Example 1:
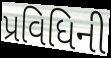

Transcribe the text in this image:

પ્રવિધિની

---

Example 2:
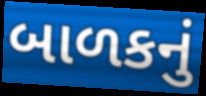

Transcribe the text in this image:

બાળકનું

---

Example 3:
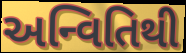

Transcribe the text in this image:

અન્વિતિથી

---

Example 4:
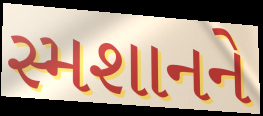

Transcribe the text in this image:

સ્મશાનને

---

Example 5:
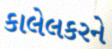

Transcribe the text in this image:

કાલેલકરને